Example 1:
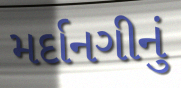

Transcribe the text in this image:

મર્દાનગીનું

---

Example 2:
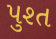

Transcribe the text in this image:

પુશ્ત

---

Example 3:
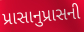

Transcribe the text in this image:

પ્રાસાનુપ્રાસની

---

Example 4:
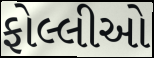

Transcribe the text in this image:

ફોલ્લીઓ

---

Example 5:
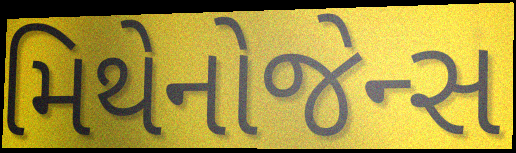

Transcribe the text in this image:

મિથેનોજેન્સ